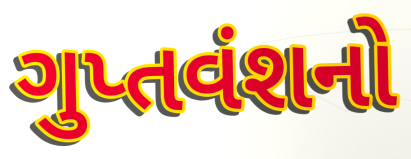
ગુપ્તવંશનો